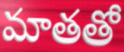
మాతతో